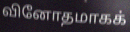
வினோதமாகக்